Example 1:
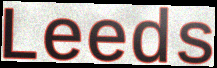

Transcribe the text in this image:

Leeds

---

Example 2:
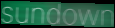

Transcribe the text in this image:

sundown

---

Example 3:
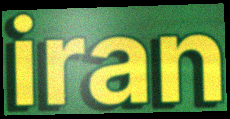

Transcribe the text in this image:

iran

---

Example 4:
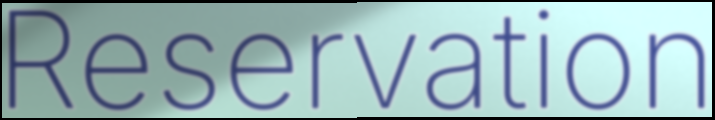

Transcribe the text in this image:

Reservation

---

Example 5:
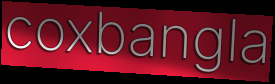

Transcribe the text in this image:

coxbangla